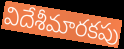
విదేశీమారకపు